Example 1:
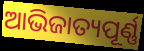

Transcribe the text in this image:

ଆଭିଜାତ୍ୟପୂର୍ଣ୍ଣ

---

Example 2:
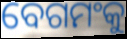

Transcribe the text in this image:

ବେଗମଂକୁ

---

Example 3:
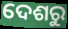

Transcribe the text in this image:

ଦେଶରୁ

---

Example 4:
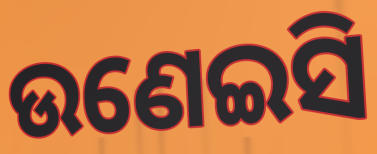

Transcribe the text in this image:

ଉଣେଇସି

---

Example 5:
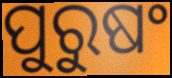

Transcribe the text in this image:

ପୁରୁଷଂ